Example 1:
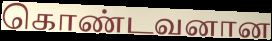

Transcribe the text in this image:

கொண்டவனான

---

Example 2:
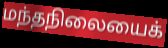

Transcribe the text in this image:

மந்தநிலையைக்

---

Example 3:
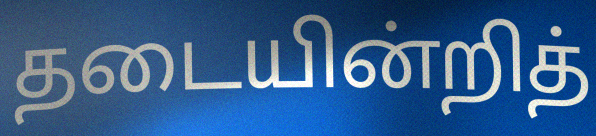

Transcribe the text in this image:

தடையின்றித்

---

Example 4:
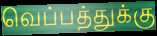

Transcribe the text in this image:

வெப்பத்துக்கு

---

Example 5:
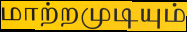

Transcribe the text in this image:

மாற்றமுடியும்